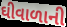
ઘીવાળાની